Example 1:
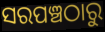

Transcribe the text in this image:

ସରପଞ୍ଚଠାରୁ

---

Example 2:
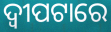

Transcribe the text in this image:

ଦ୍ୱୀପଟାରେ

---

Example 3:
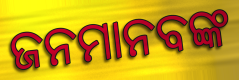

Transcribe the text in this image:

ଜନମାନବଙ୍କ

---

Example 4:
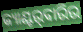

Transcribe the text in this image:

କ୍ୟାଣ୍ଟର୍‌ବାରିର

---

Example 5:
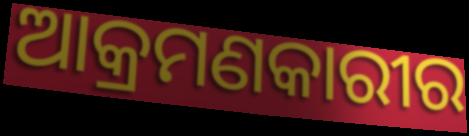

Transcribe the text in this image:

ଆକ୍ରମଣକାରୀର